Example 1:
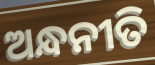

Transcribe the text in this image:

ଅନ୍ଧନୀତି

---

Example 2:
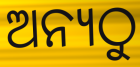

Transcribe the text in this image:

ଅନ୍ୟଠୁ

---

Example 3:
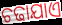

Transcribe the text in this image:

ଚଢାଯାଏ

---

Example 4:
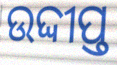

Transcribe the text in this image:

ଉଦ୍ଦୀପ୍ତ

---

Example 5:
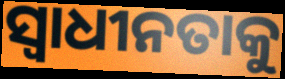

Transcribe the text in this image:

ସ୍ୱାଧୀନତାକୁ